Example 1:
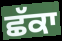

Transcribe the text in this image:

ਛੱਕਾ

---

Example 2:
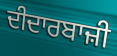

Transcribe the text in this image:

ਦੀਦਾਰਬਾਜ਼ੀ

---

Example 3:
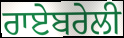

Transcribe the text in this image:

ਰਾਏਬਰੇਲੀ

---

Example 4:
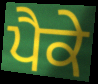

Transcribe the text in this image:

ਪੈਕੇ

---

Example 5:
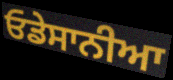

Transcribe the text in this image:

ਓਡੇਸਾਨੀਆ